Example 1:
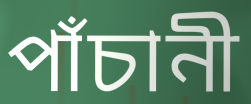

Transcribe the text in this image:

পাঁচানী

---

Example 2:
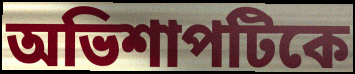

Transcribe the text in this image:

অভিশাপটিকে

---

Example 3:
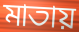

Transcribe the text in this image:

মাতায়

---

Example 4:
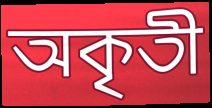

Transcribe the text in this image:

অকৃতী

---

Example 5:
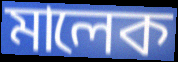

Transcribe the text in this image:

মালেক